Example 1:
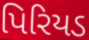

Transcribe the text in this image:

પિરિયડ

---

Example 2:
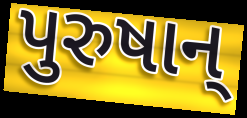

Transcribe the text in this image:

પુરુષાન્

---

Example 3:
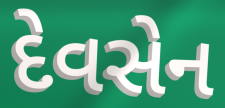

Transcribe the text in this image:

દેવસેન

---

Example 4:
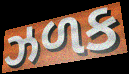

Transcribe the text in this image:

ઝળક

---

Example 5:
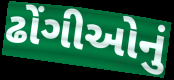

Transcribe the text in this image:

ઢોંગીઓનું